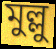
মুল্লু